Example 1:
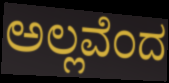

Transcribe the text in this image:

ಅಲ್ಲವೆಂದ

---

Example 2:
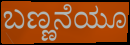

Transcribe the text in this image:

ಬಣ್ಣನೆಯೂ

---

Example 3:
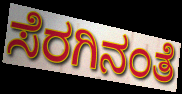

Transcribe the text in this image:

ಸೆರಗಿನಂತೆ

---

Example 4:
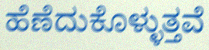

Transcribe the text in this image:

ಹೆಣೆದುಕೊಳ್ಳುತ್ತವೆ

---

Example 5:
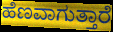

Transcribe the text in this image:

ಹೆಣವಾಗುತ್ತಾರೆ